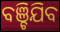
ବଞ୍ଚିଯିବ